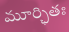
మూర్ఛితః